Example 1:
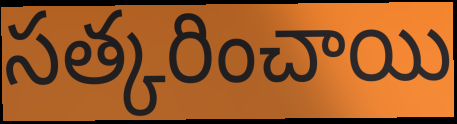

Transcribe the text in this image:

సత్కరించాయి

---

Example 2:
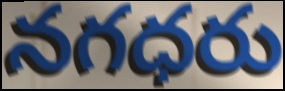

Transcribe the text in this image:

నగధరు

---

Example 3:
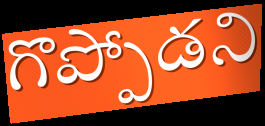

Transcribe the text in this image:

గొప్పోడని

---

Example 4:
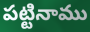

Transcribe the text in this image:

పట్టినాము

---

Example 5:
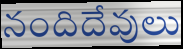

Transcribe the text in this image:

నందిదేవులు